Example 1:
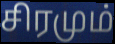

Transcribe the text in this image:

சிரமும்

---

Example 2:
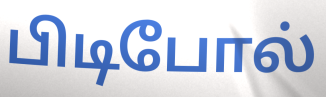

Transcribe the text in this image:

பிடிபோல்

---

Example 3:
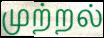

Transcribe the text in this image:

முற்றல்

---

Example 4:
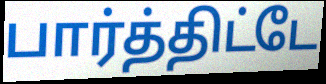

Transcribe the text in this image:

பார்த்திட்டே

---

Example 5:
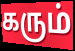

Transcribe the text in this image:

கரும்